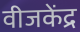
वीजकेंद्र